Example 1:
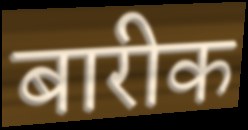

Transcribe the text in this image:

बारीक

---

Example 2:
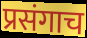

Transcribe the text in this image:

प्रसंगाच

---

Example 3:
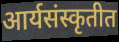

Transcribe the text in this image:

आर्यसंस्कृतीत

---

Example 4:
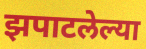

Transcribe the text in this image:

झपाटलेल्या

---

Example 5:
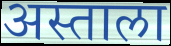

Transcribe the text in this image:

अस्ताला